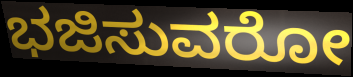
ಭಜಿಸುವರೋ